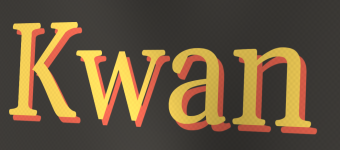
Kwan